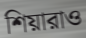
শিয়ারাও